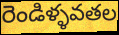
రెండిళ్ళవతల